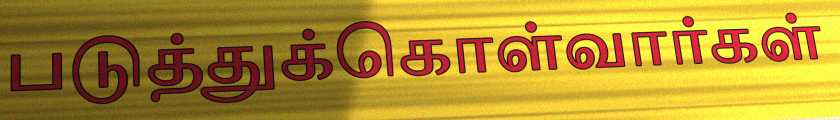
படுத்துக்கொள்வார்கள்